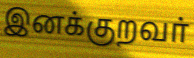
இனக்குறவர்